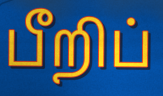
பீறிப்